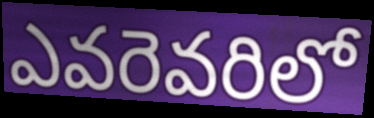
ఎవరెవరిలో